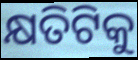
କ୍ଷତିଟିକୁ